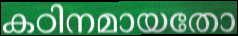
കഠിനമായതോ